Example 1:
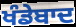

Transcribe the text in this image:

ਖੰਡੇਬਾਦ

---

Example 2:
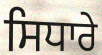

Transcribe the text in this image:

ਸਿਧਾਰੇ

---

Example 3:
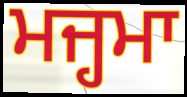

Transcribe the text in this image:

ਮਜ੍ਹਮਾ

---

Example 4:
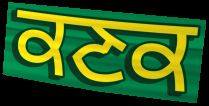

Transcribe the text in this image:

ਕਣਕ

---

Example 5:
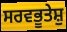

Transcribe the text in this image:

ਸਰਵਭੂਤੇਸ਼ੁ